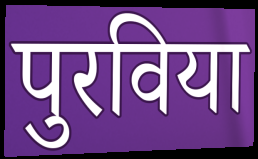
पुरविया